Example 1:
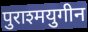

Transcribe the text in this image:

पुराश्मयुगीन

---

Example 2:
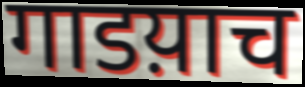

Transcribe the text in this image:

गाडय़ाच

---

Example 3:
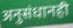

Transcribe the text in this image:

अनुसंधानही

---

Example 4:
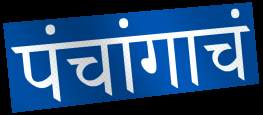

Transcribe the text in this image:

पंचांगाचं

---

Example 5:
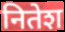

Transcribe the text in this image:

नितेश